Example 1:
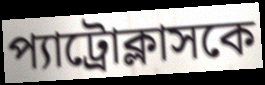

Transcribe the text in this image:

প্যাট্রোক্লাসকে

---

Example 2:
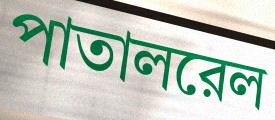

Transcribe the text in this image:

পাতালরেল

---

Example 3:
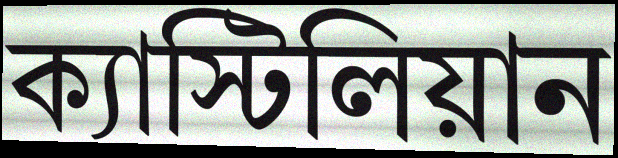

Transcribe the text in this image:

ক্যাস্টিলিয়ান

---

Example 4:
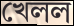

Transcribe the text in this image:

খেলল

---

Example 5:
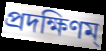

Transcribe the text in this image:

প্রদক্ষিণম্